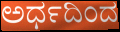
ಅರ್ಧದಿಂದ